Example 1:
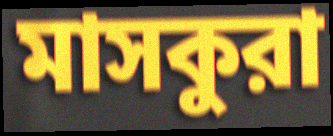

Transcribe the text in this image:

মাসকুরা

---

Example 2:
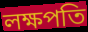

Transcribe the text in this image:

লক্ষপতি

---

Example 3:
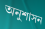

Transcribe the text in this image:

অনুশাসন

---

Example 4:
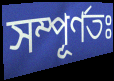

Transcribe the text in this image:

সম্পূর্ণতঃ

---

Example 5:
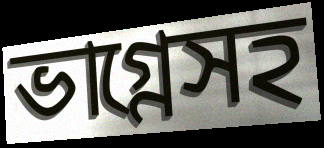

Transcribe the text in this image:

ভাগ্নেসহ